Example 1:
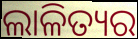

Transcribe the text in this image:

ଲାଳିତ୍ୟର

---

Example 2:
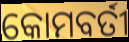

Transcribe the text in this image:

କୋମବର୍ତୀ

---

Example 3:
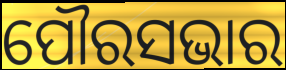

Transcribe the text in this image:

ପୌରସଭାର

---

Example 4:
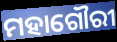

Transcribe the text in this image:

ମହାଗୌରୀ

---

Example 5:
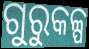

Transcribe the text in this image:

ଗୁରୁକଳ୍ପ